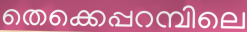
തെക്കെപ്പറമ്പിലെ